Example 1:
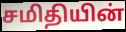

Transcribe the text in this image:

சமிதியின்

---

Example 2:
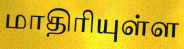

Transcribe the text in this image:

மாதிரியுள்ள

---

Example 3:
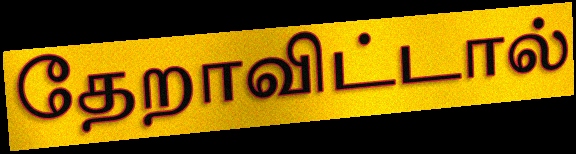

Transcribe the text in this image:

தேறாவிட்டால்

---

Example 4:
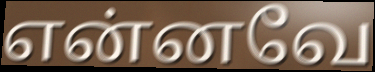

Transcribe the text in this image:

என்னவே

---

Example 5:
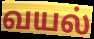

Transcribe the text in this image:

வயல்